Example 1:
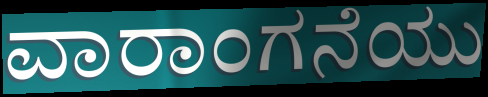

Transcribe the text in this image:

ವಾರಾಂಗನೆಯು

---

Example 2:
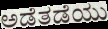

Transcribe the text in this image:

ಅಡೆತಡೆಯು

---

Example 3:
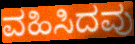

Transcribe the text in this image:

ವಹಿಸಿದವು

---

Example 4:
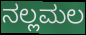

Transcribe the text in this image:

ನಲ್ಲಮಲ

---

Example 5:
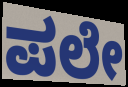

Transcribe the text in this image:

ಪಲೇ